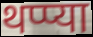
थप्प्या